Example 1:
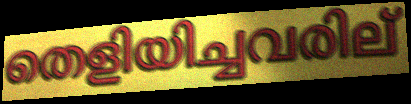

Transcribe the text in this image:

തെളിയിച്ചവരില്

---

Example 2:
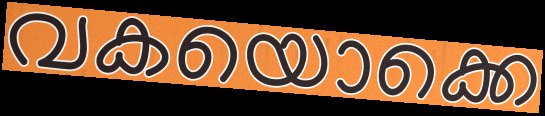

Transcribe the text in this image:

വകയൊക്കെ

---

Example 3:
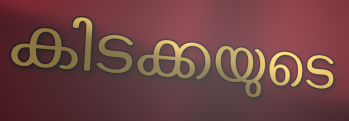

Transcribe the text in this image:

കിടക്കയുടെ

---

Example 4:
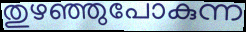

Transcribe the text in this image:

തുഴഞ്ഞുപോകുന്ന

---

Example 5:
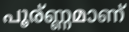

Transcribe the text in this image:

പൂര്ണ്ണമാണ്